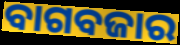
ବାଗବଜାର